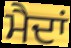
ਮੈਦਾਂ